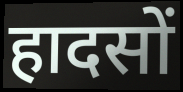
हादसों